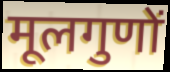
मूलगुणों